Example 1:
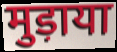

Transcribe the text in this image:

मुड़ाया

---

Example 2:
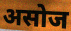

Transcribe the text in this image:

असोज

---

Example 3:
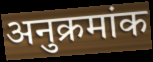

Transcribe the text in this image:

अनुक्रमांक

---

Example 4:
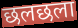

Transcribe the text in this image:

छलछला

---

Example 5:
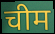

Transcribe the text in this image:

चीम